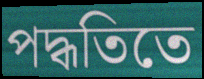
পদ্ধতিতে